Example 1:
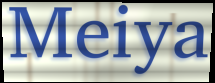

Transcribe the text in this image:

Meiya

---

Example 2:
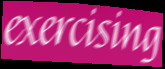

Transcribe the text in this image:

exercising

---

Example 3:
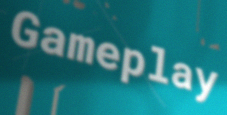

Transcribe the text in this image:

Gameplay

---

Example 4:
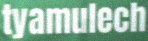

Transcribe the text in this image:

tyamulech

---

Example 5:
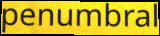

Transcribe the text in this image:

penumbral